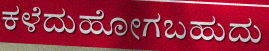
ಕಳೆದುಹೋಗಬಹುದು